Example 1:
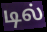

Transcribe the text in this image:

டில்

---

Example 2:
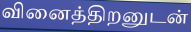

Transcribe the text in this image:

வினைத்திறனுடன்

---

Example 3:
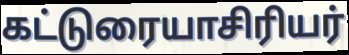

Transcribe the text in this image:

கட்டுரையாசிரியர்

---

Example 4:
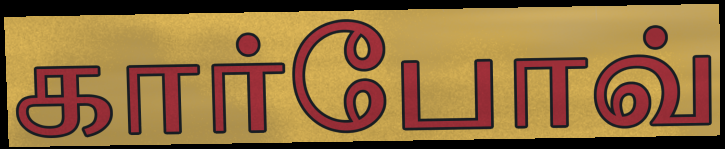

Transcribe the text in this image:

கார்போவ்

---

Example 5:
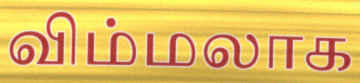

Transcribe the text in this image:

விம்மலாக